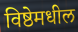
विष्ठेमधील